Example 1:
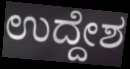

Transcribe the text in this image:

ಉದ್ದೇಶ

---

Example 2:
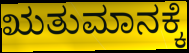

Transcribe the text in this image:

ಋತುಮಾನಕ್ಕೆ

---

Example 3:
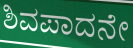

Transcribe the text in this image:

ಶಿವಪಾದನೇ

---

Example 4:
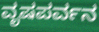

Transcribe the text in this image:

ವೃಷಪರ್ವನ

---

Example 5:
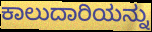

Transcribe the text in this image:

ಕಾಲುದಾರಿಯನ್ನು